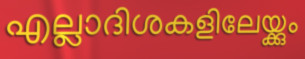
എല്ലാദിശകളിലേയ്ക്കും